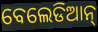
ବେଲେଡିଆନ୍